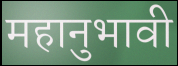
महानुभावी